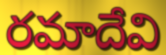
రమాదేవి